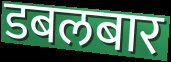
डबलबार